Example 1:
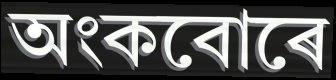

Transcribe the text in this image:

অংকবোৰে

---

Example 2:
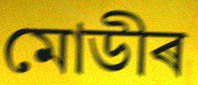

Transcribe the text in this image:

মোডীৰ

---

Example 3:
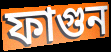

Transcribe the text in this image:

ফাগুন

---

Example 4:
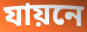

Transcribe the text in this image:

যায়নে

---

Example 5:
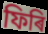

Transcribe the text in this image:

ফিৰি